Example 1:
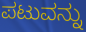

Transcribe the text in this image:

ಪಟುವನ್ನು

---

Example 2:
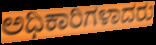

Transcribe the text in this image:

ಅಧಿಕಾರಿಗಳಾದರು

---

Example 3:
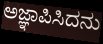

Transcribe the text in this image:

ಅಜ್ಞಾಪಿಸಿದನು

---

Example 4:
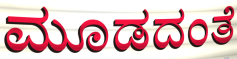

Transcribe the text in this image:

ಮೂಡದಂತೆ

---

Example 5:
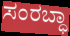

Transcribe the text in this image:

ಸಂರಬ್ಧಾ